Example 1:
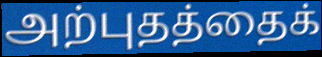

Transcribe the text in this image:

அற்புதத்தைக்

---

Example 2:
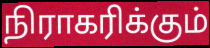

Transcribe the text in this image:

நிராகரிக்கும்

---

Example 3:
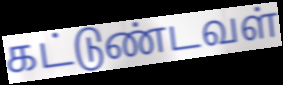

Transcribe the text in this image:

கட்டுண்டவள்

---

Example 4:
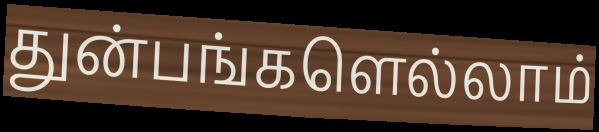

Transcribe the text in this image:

துன்பங்களெல்லாம்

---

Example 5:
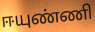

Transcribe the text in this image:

ஈயுண்ணி